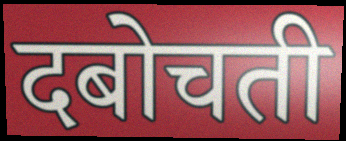
दबोचती